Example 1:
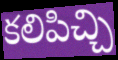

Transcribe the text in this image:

కలిపిచ్చి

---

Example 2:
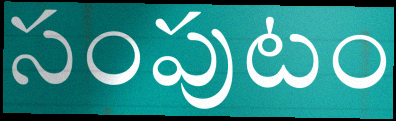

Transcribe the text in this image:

సంపుటం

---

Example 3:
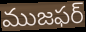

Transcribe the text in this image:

ముజఫర్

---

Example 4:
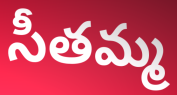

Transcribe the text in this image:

సీతమ్మ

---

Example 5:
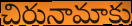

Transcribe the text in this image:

చిరునామాకు